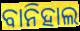
ବାନିହାଲ